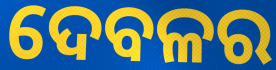
ଦେବଳର